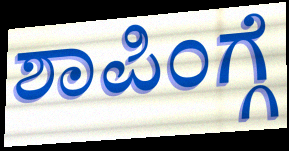
ಶಾಪಿಂಗ್ಗೆ